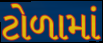
ટોળામાં